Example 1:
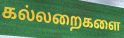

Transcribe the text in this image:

கல்லறைகளை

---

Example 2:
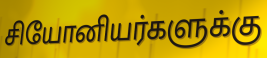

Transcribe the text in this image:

சியோனியர்களுக்கு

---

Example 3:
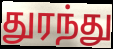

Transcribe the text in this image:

துரந்து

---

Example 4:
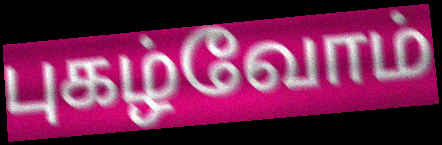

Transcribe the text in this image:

புகழ்வோம்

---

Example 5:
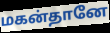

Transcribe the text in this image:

மகன்தானே